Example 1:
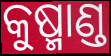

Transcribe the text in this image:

କୁଷ୍ମାଣ୍ଡ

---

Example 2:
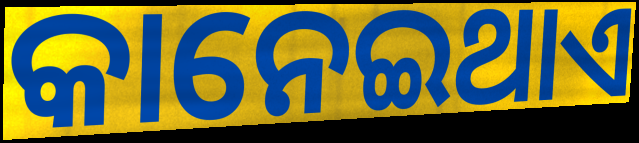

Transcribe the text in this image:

କାନେଇଥାଏ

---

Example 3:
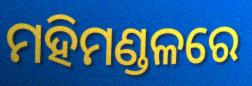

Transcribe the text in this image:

ମହିମଣ୍ଡଳରେ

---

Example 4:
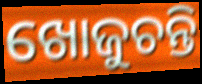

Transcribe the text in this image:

ଖୋଜୁଚନ୍ତି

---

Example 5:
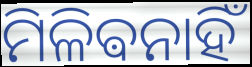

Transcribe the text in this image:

ମିଳିଵନାହିଁ